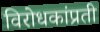
विरोधकांप्रती